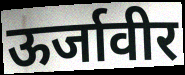
ऊर्जावीर